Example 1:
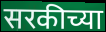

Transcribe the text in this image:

सरकीच्या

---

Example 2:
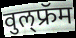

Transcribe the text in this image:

वुल्फ्रॅम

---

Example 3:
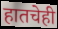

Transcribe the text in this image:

हातचेही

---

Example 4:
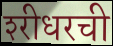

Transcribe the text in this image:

श्रीधरची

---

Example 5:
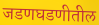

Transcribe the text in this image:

जडणघडणीतील